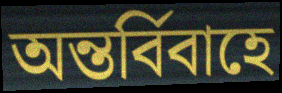
অন্তর্বিবাহে